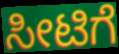
ಸೀಟಿಗೆ